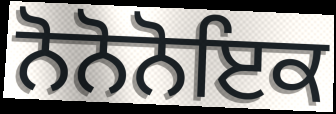
ਨੋਨੋਨੋਇਕ